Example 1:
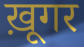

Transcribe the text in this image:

ख़ूगर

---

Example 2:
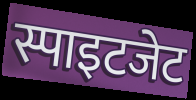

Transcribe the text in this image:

स्पाइटजेट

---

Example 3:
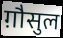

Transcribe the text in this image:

ग़ौसुल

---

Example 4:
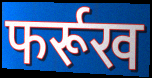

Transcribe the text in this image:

फर्रूख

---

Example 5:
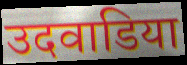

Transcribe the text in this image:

उदवाडिया